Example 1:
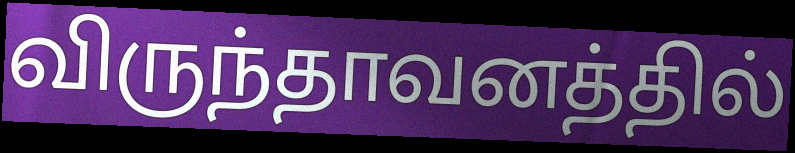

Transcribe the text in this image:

விருந்தாவனத்தில்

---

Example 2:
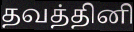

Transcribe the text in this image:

தவத்தினி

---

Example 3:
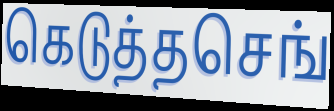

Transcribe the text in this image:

கெடுத்தசெங்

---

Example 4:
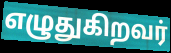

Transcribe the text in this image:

எழுதுகிறவர்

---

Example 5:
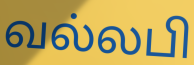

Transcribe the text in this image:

வல்லபி